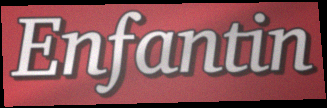
Enfantin